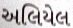
અલિયેલ